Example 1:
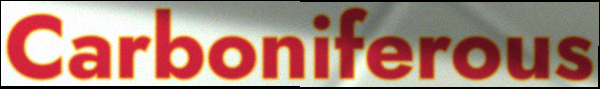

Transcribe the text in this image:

Carboniferous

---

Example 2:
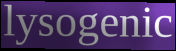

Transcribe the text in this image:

lysogenic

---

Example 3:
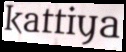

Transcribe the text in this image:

kattiya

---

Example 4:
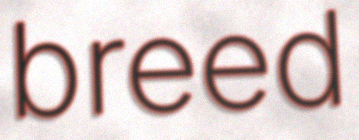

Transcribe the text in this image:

breed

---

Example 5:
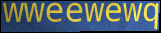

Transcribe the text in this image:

wweewewq